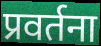
प्रवर्तना